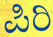
ಪಿರಿ